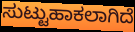
ಸುಟ್ಟುಹಾಕಲಾಗಿದೆ